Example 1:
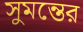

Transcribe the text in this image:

সুমন্তের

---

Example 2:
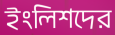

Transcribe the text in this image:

ইংলিশদের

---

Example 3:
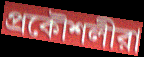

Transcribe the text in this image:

প্রকৌশলীরা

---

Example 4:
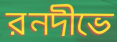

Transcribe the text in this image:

রনদীভে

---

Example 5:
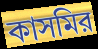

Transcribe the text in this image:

কাসমির